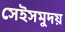
সেইসমুদয়